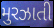
મુરઝાતી